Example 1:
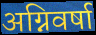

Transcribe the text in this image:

अग्निवर्षा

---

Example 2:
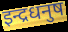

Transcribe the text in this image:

इन्द्रधनुष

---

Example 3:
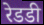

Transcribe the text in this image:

रेडडी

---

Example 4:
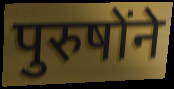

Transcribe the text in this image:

पुरुषोंने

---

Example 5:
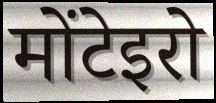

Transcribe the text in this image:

मोंटेइरो